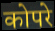
कोपरे